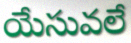
యేసువలే